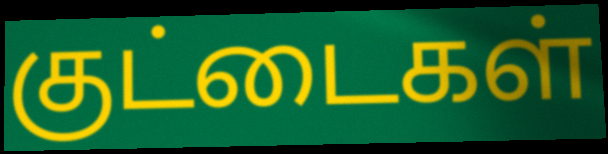
குட்டைகள்